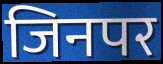
जिनपर